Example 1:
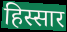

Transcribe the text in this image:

हिस्सार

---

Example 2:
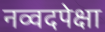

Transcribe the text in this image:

नव्वदपेक्षा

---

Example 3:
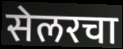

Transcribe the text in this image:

सेलरचा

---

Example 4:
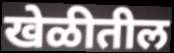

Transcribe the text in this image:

खेळीतील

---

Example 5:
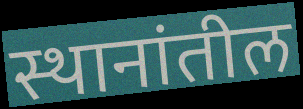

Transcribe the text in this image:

स्थानांतील